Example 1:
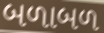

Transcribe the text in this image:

બળાબળ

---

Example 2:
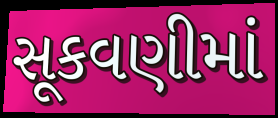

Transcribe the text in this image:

સૂકવણીમાં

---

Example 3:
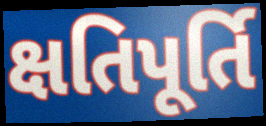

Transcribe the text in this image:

ક્ષતિપૂર્તિ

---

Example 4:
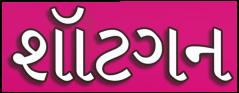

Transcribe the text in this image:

શૉટગન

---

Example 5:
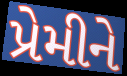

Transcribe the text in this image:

પ્રેમીને